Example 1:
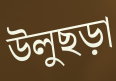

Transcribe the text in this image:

উলুছড়া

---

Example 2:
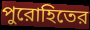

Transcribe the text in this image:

পুরোহিতের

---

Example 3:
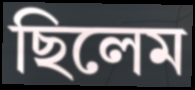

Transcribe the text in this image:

ছিলেম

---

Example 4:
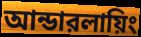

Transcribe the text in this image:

আন্ডারলায়িং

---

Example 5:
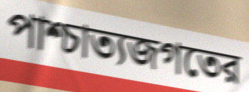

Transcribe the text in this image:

পাশ্চাত্যজগতের